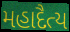
મહાદૈત્ય